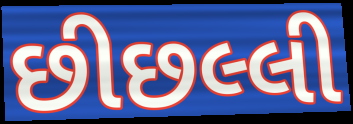
છીછલ્લી